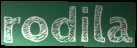
rodila